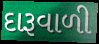
દારૂવાળી